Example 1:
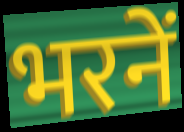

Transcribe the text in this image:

भरनें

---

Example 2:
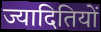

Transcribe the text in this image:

ज्यादितियों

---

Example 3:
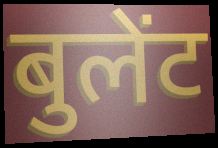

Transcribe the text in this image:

बुलेंट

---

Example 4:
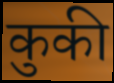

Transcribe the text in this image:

कुकी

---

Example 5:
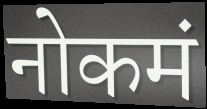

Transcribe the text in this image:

नोकमं